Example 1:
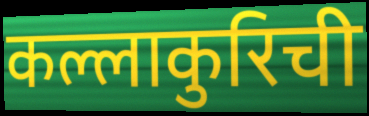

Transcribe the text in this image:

कल्लाकुरिची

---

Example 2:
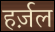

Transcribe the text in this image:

हर्ज़ल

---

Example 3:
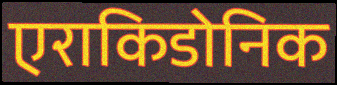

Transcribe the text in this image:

एराकिडोनिक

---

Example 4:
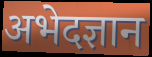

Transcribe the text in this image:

अभेदज्ञान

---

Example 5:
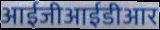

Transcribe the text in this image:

आईजीआईडीआर